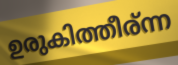
ഉരുകിത്തീര്ന്ന